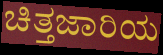
ಚಿತ್ತಜಾರಿಯ